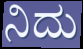
ನಿದು